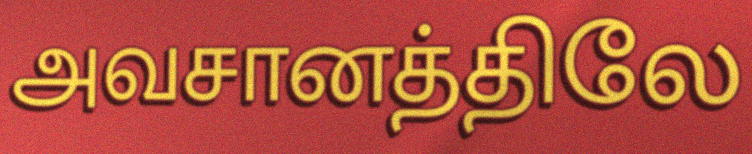
அவசானத்திலே